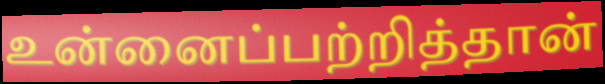
உன்னைப்பற்றித்தான்